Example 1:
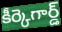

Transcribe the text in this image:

కీర్కెగార్డ్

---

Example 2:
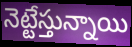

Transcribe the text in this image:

నెట్టేస్తున్నాయి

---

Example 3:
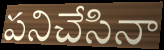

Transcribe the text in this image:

పనిచేసినా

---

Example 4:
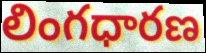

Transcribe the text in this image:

లింగధారణ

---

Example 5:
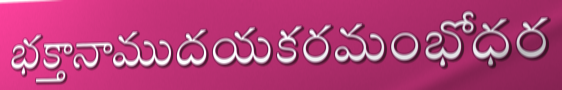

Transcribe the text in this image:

భక్తానాముదయకరమంభోధర